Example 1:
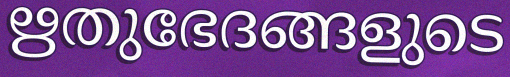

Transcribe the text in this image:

ഋതുഭേദങ്ങളുടെ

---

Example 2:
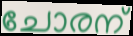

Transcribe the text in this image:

ചോരന്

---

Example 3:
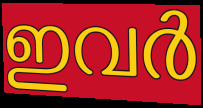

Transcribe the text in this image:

ഇവർ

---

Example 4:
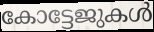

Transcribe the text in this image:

കോട്ടേജുകൾ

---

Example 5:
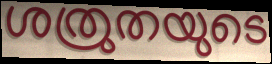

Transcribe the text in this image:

ശത്രുതയുടെ